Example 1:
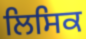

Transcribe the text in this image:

ਲਿਸਿਕ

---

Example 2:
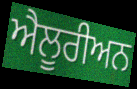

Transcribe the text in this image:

ਐਲੂਰੀਅਨ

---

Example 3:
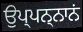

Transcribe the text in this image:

ਉਪ੍ਪਨ੍ਨਾਨਂ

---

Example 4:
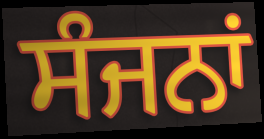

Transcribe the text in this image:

ਸੰਜਨਾਂ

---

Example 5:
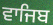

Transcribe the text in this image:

ਵਾਜਿਬ